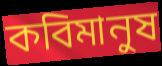
কবিমানুষ